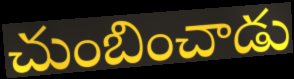
చుంబించాడు